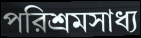
পরিশ্রমসাধ্য